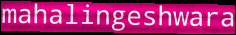
mahalingeshwara